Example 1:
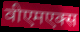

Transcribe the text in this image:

वीएमएक्स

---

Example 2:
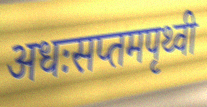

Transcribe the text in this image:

अधःसप्तमपृथ्वी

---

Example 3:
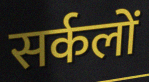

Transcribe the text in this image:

सर्कलों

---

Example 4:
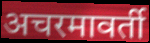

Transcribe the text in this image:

अचरमावर्ती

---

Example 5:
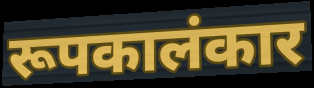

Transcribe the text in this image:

रूपकालंकार